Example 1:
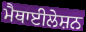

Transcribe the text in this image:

ਮੈਥਾਈਲੇਸ਼ਨ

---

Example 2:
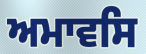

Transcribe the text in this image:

ਅਮਾਵਸਿ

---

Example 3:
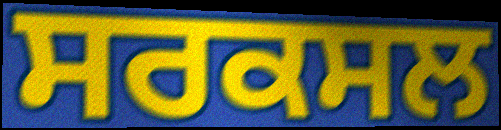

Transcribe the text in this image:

ਸਰਕਸਲ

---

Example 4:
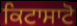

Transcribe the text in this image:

ਕਿਟਾਸਾਟੋ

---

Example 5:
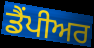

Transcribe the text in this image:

ਡੈਂਪੀਅਰ